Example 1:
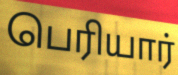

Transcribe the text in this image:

பெரியார்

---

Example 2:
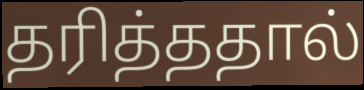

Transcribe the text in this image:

தரித்ததால்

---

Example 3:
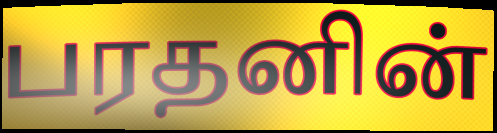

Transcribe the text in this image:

பரதனின்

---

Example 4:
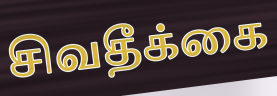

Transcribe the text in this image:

சிவதீக்கை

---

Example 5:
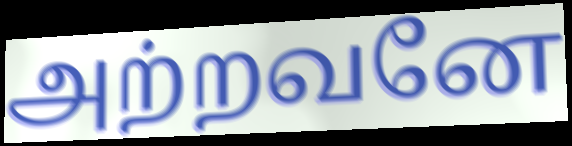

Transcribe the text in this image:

அற்றவனே